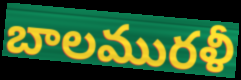
బాలమురళీ